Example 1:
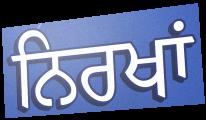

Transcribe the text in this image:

ਨਿਰਖਾਂ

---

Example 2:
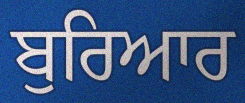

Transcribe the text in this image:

ਬੁਰਿਆਰ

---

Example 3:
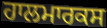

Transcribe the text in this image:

ਹਾਲਮਾਰਕਸ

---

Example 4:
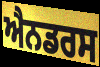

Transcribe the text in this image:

ਐਨਡਰਸ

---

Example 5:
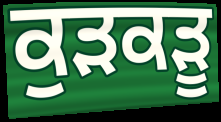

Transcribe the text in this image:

ਕੁੜਕੜੂ